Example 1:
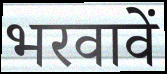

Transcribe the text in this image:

भरवावें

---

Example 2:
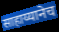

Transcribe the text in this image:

साहाय्यानेच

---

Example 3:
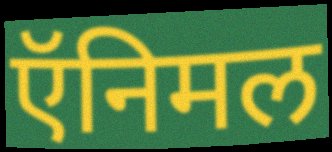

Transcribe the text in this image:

ऍनिमल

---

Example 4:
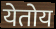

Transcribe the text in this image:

येतोय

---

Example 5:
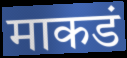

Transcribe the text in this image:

माकडं